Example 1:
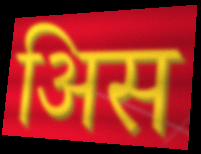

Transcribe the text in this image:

अिस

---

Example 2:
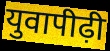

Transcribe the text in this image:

युवापीढ़ी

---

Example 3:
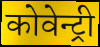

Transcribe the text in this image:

कोवेन्ट्री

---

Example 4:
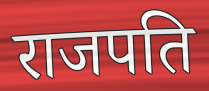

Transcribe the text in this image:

राजपति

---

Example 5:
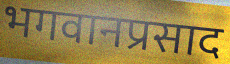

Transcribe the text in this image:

भगवानप्रसाद